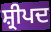
ਸ਼੍ਰੀਪਦ